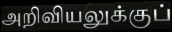
அறிவியலுக்குப்